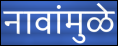
नावांमुळे